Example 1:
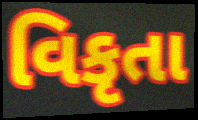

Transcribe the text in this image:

વિકૃતા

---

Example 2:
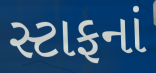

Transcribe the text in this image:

સ્ટાફનાં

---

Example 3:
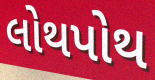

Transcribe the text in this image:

લોથપોથ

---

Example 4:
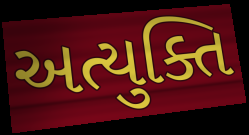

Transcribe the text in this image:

અત્યુક્તિ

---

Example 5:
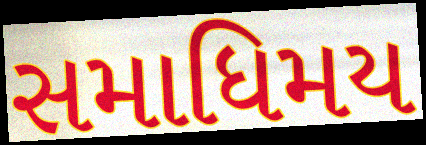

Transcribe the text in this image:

સમાધિમય